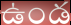
ఉండ